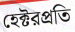
হেক্টরপ্রতি